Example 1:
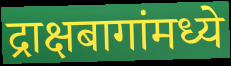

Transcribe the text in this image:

द्राक्षबागांमध्ये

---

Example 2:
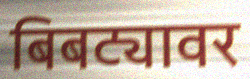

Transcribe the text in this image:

बिबट्यावर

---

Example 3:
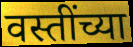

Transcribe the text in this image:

वस्तींच्या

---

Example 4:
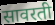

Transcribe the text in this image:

सावरती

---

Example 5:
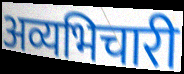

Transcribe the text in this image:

अव्यभिचारी